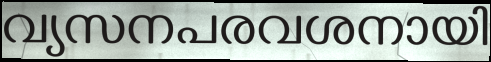
വ്യസനപരവശനായി